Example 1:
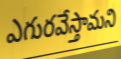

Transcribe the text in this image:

ఎగురవేస్తామని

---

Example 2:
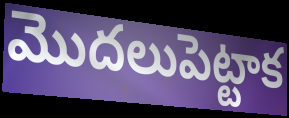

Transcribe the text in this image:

మొదలుపెట్టాక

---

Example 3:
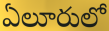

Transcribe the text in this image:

ఏలూరులో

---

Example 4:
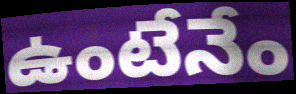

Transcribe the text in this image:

ఉంటేనేం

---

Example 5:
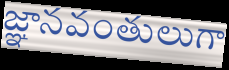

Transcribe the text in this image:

జ్ఞానవంతులుగా